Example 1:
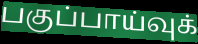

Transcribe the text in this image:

பகுப்பாய்வுக்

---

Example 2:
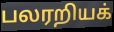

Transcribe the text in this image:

பலரறியக்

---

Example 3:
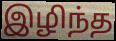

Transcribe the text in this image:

இழிந்த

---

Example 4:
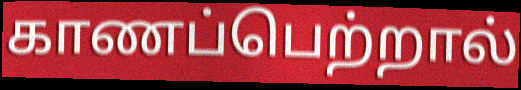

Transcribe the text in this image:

காணப்பெற்றால்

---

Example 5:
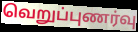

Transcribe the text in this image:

வெறுப்புணர்வு